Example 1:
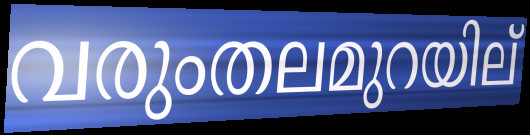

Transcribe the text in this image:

വരുംതലമുറയില്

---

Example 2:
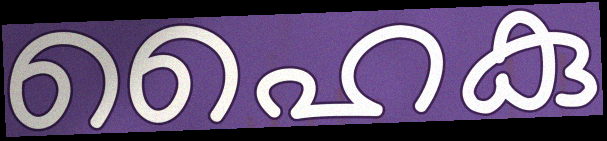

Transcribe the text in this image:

ഹൈകു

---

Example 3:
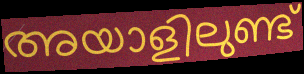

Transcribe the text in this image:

അയാളിലുണ്ട്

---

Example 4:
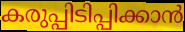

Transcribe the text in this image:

കരുപ്പിടിപ്പിക്കാൻ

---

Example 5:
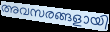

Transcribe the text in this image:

അവസരങ്ങളായി